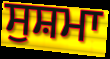
ਸੁਸ਼ਮਾ